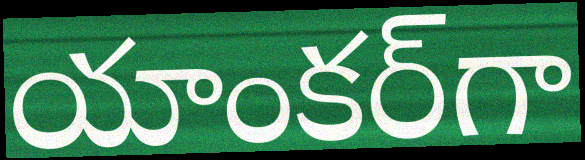
యాంకర్‌గా